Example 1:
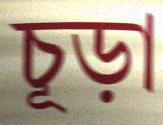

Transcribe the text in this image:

চূড়া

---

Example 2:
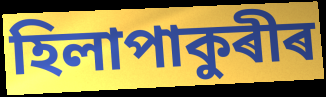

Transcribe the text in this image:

হিলাপাকুৰীৰ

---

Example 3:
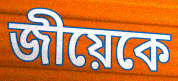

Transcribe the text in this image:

জীয়েকে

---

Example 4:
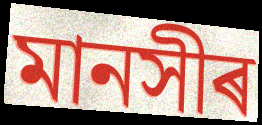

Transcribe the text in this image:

মানসীৰ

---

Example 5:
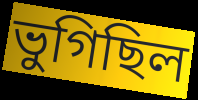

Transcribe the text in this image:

ভুগিছিল